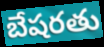
బేషరతు